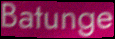
Batunge